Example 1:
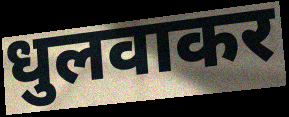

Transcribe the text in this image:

धुलवाकर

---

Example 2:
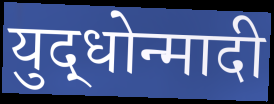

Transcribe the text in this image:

युद्धोन्मादी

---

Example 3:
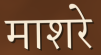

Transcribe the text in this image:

माशरे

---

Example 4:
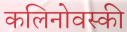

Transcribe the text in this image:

कलिनोवस्की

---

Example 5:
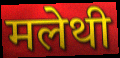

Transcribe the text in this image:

मलेथी